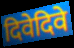
दिवेदिवे